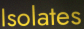
Isolates